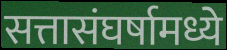
सत्तासंघर्षामध्ये